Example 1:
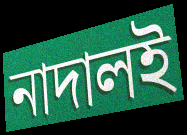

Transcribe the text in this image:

নাদালই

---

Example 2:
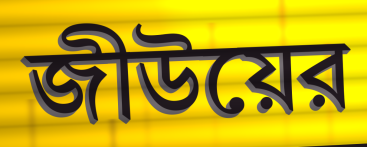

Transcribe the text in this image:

জীউয়ের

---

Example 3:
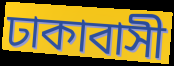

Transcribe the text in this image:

ঢাকাবাসী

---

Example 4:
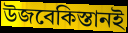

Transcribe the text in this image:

উজবেকিস্তানই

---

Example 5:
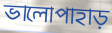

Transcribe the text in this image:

ভালোপাহাড়